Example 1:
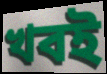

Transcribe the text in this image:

খবই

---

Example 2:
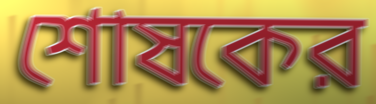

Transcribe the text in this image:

শোষকের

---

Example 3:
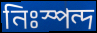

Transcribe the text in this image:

নিঃস্পন্দ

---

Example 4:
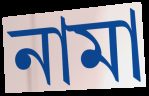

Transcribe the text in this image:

নামা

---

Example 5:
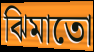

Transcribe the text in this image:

ঝিমাতো